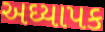
અઘ્યાપક